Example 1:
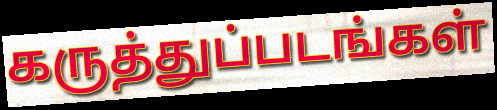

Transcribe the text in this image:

கருத்துப்படங்கள்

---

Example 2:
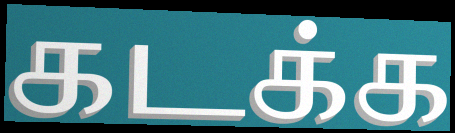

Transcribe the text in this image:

கடக்க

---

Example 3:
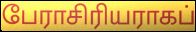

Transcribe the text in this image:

பேராசிரியராகப்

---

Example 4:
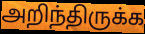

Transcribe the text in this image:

அறிந்திருக்க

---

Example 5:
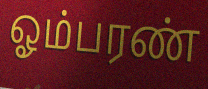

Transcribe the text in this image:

ஓம்பரண்